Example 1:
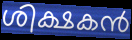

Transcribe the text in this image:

ശിക്ഷകൻ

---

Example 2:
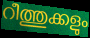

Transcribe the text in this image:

റീത്തുക്കളും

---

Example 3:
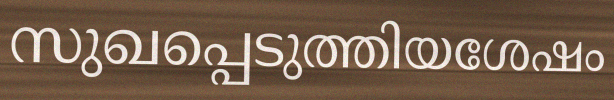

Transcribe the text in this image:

സുഖപ്പെടുത്തിയശേഷം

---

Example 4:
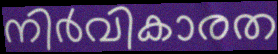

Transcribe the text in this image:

നിർവികാരത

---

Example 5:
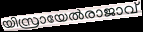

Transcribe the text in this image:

യിസ്രായേൽരാജാവ്